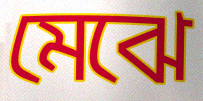
মেঝে